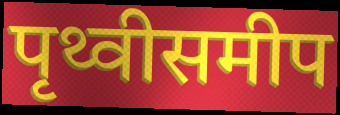
पृथ्वीसमीप